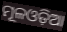
ମୂଳଓଡ଼ିଆ